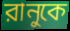
রানুকে